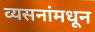
व्यसनांमधून